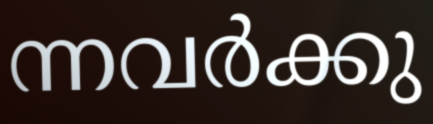
ന്നവർക്കു